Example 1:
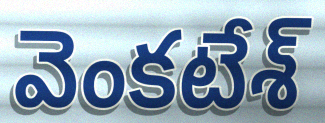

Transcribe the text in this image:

వెంకటేశ్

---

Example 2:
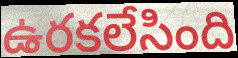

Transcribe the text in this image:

ఉరకలేసింది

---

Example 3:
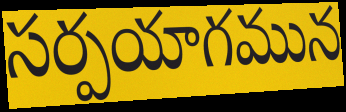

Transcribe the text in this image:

సర్పయాగమున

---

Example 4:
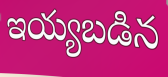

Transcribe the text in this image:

ఇయ్యబడిన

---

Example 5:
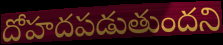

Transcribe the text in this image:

దోహదపడుతుందని